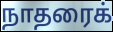
நாதரைக்